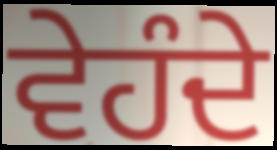
ਵੇਹੰਦੇ